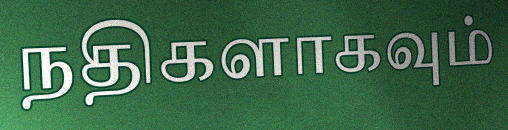
நதிகளாகவும்